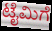
ಟೈಮಿಗೆ